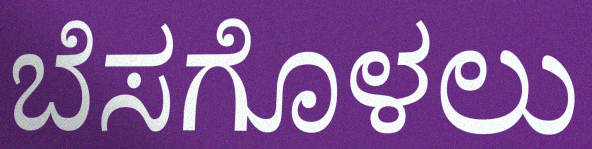
ಬೆಸಗೊಳಲು